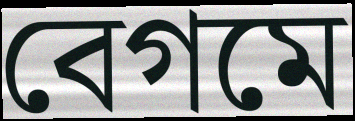
বেগমে